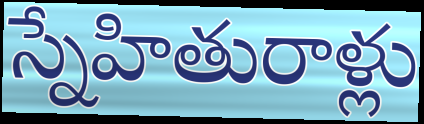
స్నేహితురాళ్లు